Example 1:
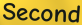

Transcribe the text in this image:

Second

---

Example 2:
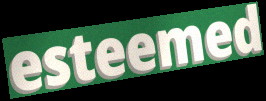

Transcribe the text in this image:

esteemed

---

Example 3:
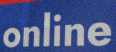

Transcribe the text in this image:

online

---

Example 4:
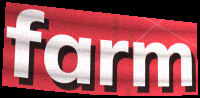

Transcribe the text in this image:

farm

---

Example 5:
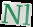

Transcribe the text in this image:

Nl